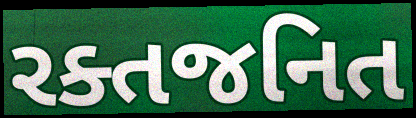
રક્તજનિત